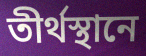
তীর্থস্থানে